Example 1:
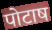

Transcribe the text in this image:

पोटाष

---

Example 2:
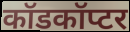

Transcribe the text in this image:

कॉडकॉप्टर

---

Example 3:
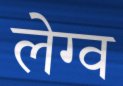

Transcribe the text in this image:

लेग्व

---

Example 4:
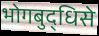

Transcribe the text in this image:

भोगबुद्धिसे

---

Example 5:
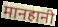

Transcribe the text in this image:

मानहानी